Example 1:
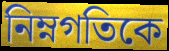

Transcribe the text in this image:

নিম্নগতিকে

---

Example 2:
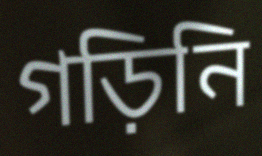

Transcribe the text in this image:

গড়িনি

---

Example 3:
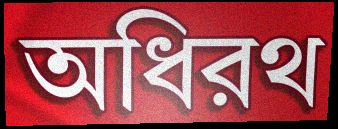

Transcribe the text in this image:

অধিরথ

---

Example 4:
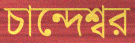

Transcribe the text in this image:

চান্দেশ্বর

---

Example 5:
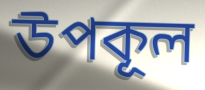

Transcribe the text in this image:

উপকূল